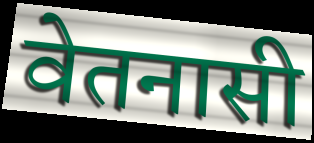
वेतनासी